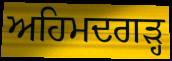
ਅਹਿਮਦਗੜ੍ਹ